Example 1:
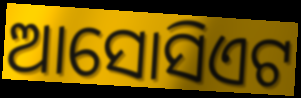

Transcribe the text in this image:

ଆସୋସିଏଟ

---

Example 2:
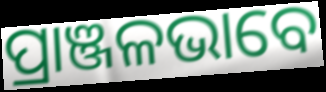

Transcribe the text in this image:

ପ୍ରାଞ୍ଜଳଭାବେ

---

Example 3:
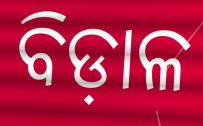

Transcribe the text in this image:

ବିଡ଼ାଳ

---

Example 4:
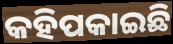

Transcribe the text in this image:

କହିପକାଇଛି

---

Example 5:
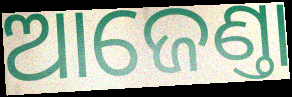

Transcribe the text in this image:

ଆଜେଣ୍ତା